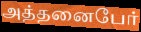
அத்தனைபேர்